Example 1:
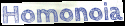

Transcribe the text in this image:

Homonoia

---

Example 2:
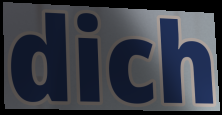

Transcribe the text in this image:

dich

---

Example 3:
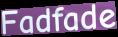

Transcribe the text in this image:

Fadfade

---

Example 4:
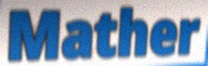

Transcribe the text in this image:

Mather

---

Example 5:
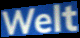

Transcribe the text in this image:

Welt